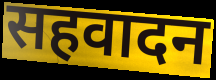
सहवादन